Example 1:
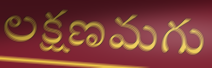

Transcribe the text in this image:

లక్షణమగు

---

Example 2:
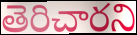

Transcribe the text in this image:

తెరిచారని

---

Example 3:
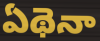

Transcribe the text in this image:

ఏథెనా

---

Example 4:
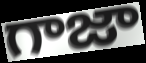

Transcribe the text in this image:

గాజా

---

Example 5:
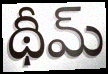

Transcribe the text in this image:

థీమ్